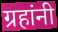
ग्रहांनी